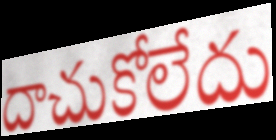
దాచుకోలేదు